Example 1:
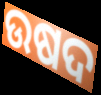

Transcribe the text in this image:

ଉଷଦ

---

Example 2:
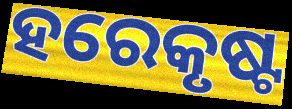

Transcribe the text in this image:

ହରେକୃଷ୍ଟ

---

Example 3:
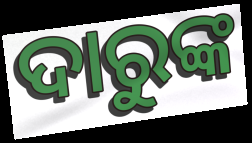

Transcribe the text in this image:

ଦାରୁଙ୍କ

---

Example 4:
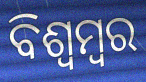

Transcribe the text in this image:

ବିଶ୍ଵମ୍ବର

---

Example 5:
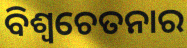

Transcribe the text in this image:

ବିଶ୍ଵଚେତନାର